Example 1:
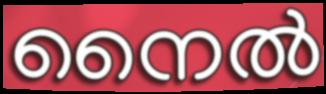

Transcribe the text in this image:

നൈൽ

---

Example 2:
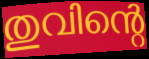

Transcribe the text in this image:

തുവിന്റെ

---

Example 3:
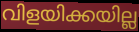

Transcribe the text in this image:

വിളയിക്കയില്ല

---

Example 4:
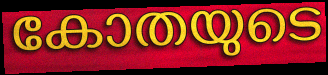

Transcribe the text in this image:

കോതയുടെ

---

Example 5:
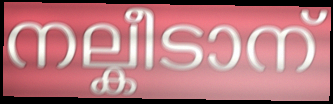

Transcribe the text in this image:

നല്കീടാന്